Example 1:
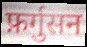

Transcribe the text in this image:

फ़र्गुसन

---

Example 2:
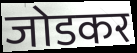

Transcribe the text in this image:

जोडकर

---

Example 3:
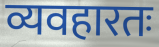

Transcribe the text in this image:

व्यवहारतः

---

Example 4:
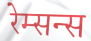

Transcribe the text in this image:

रेम्सन्स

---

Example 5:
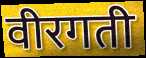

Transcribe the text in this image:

वीरगती